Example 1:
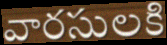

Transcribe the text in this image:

వారసులకి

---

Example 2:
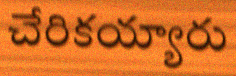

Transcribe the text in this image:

చేరికయ్యారు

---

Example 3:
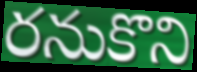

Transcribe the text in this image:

రనుకొని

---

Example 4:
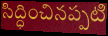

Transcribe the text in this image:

సిద్ధించినప్పటి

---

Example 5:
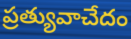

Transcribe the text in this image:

ప్రత్యువాచేదం